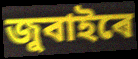
জুবাইৰে